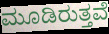
ಮೂಡಿರುತ್ತವೆ